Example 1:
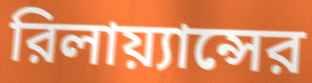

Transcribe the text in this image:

রিলায়্যান্সের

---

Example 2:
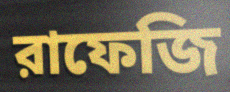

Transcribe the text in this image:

রাফেজি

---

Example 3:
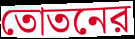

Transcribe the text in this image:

তোতনের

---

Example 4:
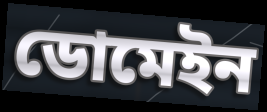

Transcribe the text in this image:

ডোমেইন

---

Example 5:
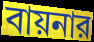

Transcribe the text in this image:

বায়নার